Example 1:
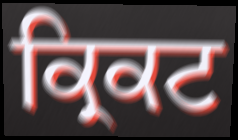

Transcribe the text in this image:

ਕ੍ਰਿਕਟ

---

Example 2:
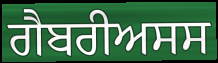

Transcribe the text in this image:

ਗੈਬਰੀਅਸਸ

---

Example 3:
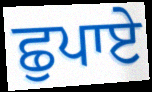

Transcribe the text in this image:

ਛੁਪਾਏ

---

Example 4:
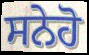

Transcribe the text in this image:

ਸਨੇਹੋ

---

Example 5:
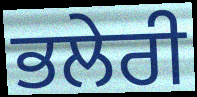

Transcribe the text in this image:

ਭਲੇਰੀ